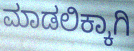
ಮಾಡಲಿಕ್ಕಾಗಿ